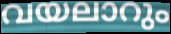
വയലാറും